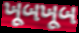
ખૂબખૂબ